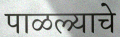
पाळल्याचे